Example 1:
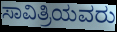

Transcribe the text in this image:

ಸಾವಿತ್ರಿಯವರು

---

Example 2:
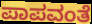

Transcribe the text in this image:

ಪಾಪವಂತೆ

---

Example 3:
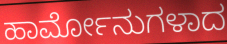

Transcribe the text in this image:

ಹಾರ್ಮೋನುಗಳಾದ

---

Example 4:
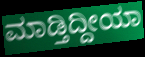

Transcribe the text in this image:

ಮಾಡ್ತಿದ್ದೀಯಾ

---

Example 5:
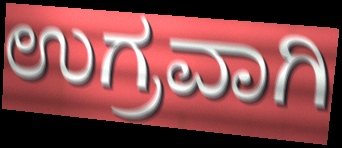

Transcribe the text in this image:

ಉಗ್ರವಾಗಿ